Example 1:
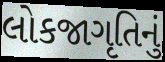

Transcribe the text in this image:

લોકજાગૃતિનું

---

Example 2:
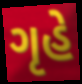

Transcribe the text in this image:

ગૃહે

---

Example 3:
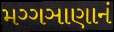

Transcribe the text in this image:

મગ્ગઞાણાનં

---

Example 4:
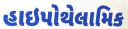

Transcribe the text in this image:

હાઇપોથેલામિક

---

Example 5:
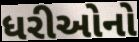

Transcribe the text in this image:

ધરીઓનો